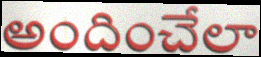
అందించేలా